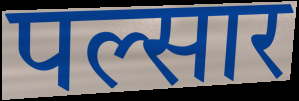
पल्सार